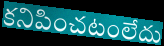
కనిపించటంలేదు